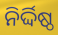
ନିର୍ଦ୍ଦିଷ୍ଠ